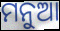
ମନୁଆ